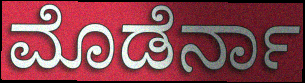
ಮೊಡೆರ್ನಾ